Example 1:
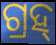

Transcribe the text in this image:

ଗ୍ରହ୍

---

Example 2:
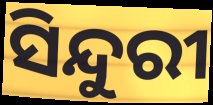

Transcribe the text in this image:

ସିନ୍ଦୁରୀ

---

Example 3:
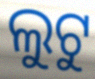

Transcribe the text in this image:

ଲୁଟୁ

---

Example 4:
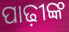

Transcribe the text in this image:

ପାଢ଼ୀଙ୍କ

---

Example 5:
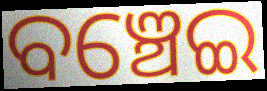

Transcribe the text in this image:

ବଞ୍ଚେଇ